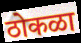
ठोकळा